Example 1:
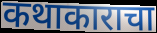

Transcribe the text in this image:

कथाकाराचा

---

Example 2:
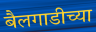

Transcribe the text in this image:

बैलगाडीच्या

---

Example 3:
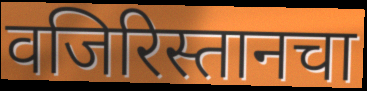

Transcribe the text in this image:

वजिरिस्तानचा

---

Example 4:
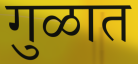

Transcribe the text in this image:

गुळात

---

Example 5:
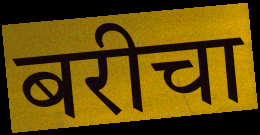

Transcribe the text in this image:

बरीचा